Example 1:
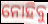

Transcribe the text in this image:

ନୋହିବୁ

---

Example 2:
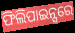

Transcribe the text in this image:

ଫିଲିପାଇନ୍ସରେ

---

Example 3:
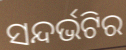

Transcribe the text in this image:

ସନ୍ଦର୍ଭଟିର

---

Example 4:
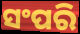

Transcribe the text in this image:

ସଂପରି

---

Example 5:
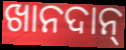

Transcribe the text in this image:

ଖାନଦାନ୍